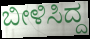
ಬೀಳಿಸಿದ್ದ